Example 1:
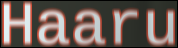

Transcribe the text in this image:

Haaru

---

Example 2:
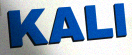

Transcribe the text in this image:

KALI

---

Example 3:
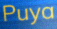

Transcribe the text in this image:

Puya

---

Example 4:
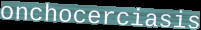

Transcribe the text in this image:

onchocerciasis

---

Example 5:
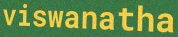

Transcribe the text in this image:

viswanatha